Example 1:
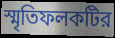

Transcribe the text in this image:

স্মৃতিফলকটির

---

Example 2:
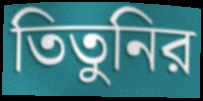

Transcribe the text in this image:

তিতুনির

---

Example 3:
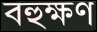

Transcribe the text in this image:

বহুক্ষণ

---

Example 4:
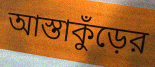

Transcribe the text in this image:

আস্তাকুঁড়ের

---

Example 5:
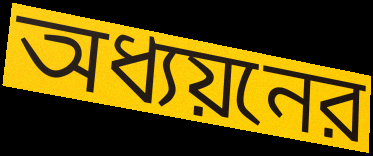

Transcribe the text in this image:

অধ্যয়নের